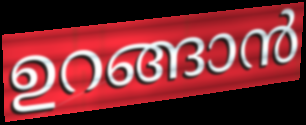
ഉറങ്ങാൻ